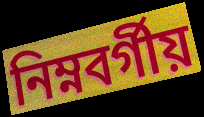
নিম্নবর্গীয়